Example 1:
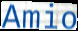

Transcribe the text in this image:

Amio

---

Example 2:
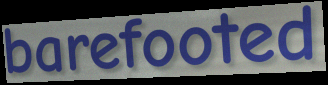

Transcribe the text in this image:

barefooted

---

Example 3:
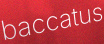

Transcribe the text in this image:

baccatus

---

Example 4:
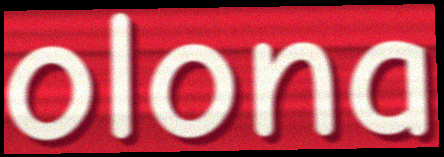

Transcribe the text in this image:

olona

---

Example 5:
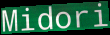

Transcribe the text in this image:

Midori